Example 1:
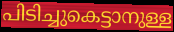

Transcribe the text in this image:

പിടിച്ചുകെട്ടാനുള്ള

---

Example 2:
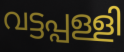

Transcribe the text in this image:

വട്ടപ്പള്ളി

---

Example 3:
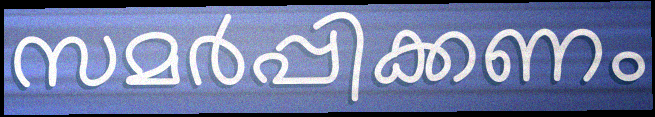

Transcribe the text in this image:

സമർപ്പിക്കണം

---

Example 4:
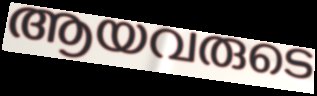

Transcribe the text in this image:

ആയവരുടെ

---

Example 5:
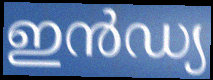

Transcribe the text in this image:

ഇൻഡ്യ